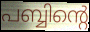
പബ്ബിന്റെ